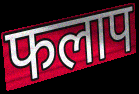
फलाप